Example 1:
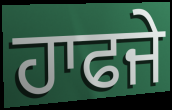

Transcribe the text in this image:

ਹਾਫਜੇ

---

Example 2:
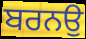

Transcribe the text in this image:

ਬਰਨਉ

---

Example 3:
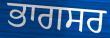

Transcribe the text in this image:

ਭਾਗਸਰ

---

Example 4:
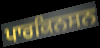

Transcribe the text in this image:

ਪਾਰਕਿਨਸਨ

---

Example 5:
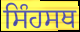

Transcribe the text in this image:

ਸਿੰਹਸਥ